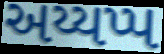
અય્યપ્પ